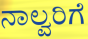
ನಾಲ್ವರಿಗೆ